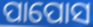
ପାପୋସ